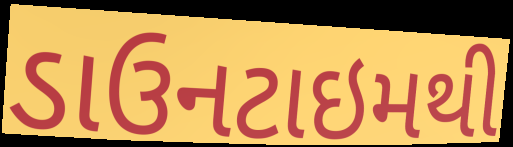
ડાઉનટાઇમથી